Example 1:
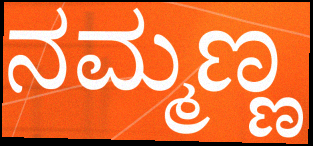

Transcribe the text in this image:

ನಮ್ಮಣ್ಣ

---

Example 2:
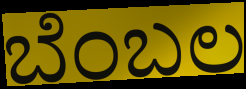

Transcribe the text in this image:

ಬೆಂಬಲ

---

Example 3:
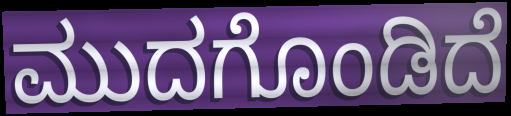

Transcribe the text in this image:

ಮುದಗೊಂಡಿದೆ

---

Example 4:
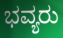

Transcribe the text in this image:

ಭವ್ಯರು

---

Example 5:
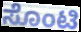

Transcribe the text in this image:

ಸೊಂಟಿ